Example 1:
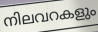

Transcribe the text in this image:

നിലവറകളും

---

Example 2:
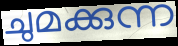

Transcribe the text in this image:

ചുമക്കുന്ന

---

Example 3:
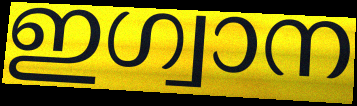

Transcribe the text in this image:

ഇഗ്വാന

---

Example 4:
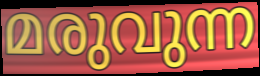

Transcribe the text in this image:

മരുവുന്ന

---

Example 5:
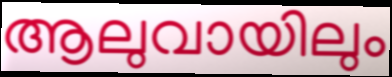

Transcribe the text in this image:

ആലുവായിലും